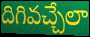
దిగివచ్చేలా